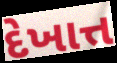
દેખાત્ત